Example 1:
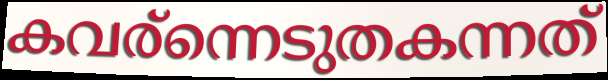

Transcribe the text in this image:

കവര്ന്നെടുതകന്നത്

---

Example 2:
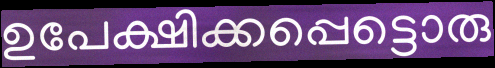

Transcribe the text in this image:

ഉപേക്ഷിക്കപ്പെട്ടൊരു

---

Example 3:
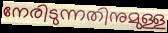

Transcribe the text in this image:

നേരിടുന്നതിനുമുള്ള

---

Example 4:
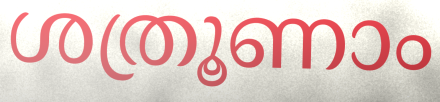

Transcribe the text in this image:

ശത്രൂണാം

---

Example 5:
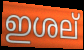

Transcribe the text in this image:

ഇശല്